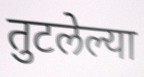
तुटलेल्या